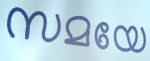
സമയേ